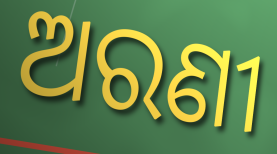
ଅରଣୀ